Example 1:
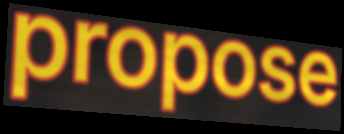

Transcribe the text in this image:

propose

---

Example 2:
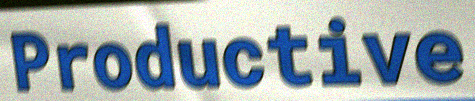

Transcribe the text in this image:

Productive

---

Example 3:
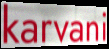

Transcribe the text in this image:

karvani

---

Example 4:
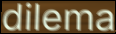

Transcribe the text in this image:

dilema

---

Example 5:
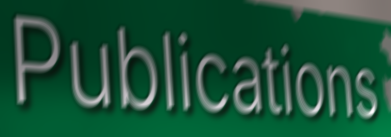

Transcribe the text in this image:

Publications